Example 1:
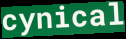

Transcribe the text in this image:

cynical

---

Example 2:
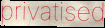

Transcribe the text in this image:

privatised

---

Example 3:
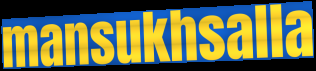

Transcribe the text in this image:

mansukhsalla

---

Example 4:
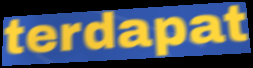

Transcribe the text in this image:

terdapat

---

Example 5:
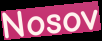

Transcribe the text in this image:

Nosov